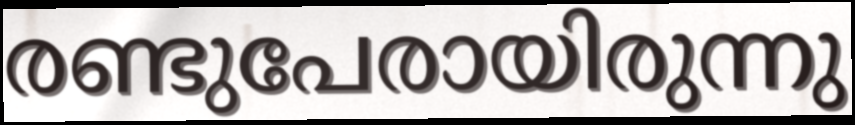
രണ്ടുപേരായിരുന്നു